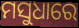
ମସୁଧାରେ